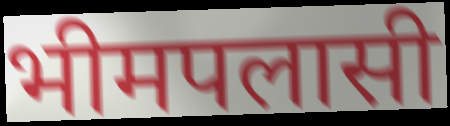
भीमपलासी